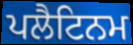
ਪਲੈਟਿਨਮ